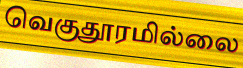
வெகுதூரமில்லை